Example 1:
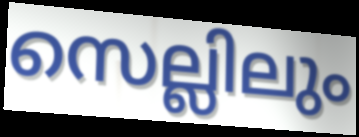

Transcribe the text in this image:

സെല്ലിലും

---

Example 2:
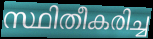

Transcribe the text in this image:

സ്ഥിതീകരിച്ച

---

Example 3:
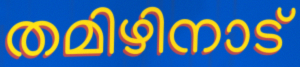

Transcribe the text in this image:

തമിഴിനാട്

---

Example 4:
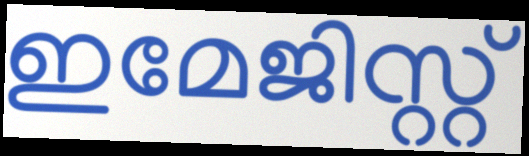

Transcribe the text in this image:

ഇമേജിസ്റ്റ്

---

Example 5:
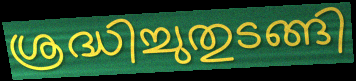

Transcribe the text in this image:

ശ്രദ്ധിച്ചുതുടങ്ങി